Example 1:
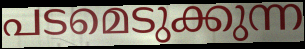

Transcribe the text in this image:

പടമെടുക്കുന്ന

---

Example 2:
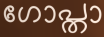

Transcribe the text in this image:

ഗോപ്താ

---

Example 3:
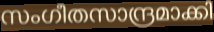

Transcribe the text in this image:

സംഗീതസാന്ദ്രമാക്കി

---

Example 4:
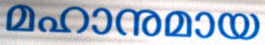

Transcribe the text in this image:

മഹാനുമായ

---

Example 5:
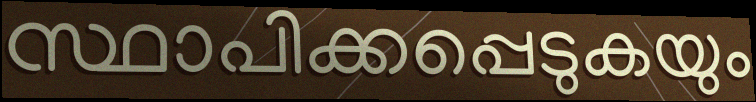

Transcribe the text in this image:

സ്ഥാപിക്കപ്പെടുകയും